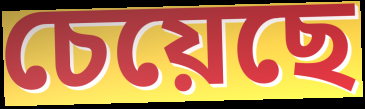
চেয়েছে